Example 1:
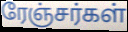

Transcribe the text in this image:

ரேஞ்சர்கள்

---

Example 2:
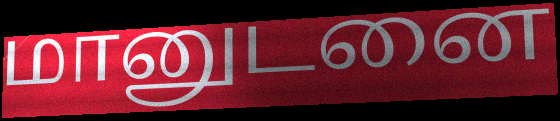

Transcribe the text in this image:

மானுடனை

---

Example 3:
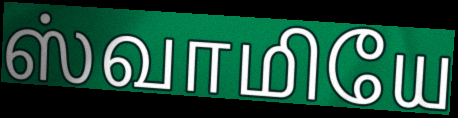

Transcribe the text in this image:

ஸ்வாமியே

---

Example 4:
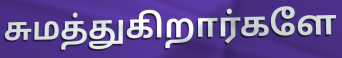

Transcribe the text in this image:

சுமத்துகிறார்களே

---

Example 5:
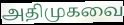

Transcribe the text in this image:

அதிமுகவை